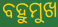
ବହୁମୁଖ